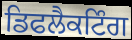
ਡਿਫਲੈਕਟਿੰਗ